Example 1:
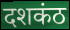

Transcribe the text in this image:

दशकंठ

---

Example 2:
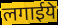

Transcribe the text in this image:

लगाईये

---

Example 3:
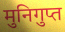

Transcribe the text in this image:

मुनिगुप्त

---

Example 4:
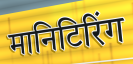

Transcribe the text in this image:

मानिटिरिंग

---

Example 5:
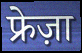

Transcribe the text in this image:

फ्रेज़ा